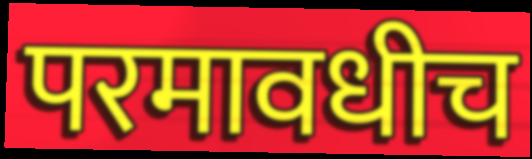
परमावधीच